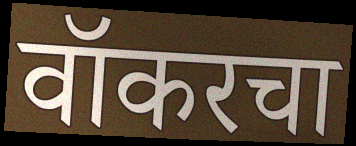
वॉकरचा